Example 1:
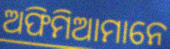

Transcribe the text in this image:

ଅଫିମିଆମାନେ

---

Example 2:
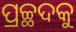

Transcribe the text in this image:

ପ୍ରଚ୍ଛଦକୁ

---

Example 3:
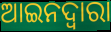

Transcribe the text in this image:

ଆଇନଦ୍ଵାରା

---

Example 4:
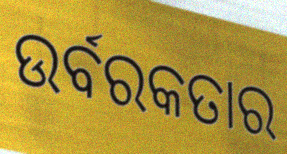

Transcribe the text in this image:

ଉର୍ବରକତାର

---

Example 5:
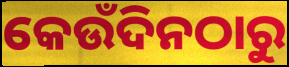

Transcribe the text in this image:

କେଉଁଦିନଠାରୁ